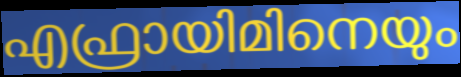
എഫ്രായിമിനെയും